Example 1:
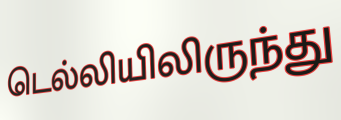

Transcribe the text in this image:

டெல்லியிலிருந்து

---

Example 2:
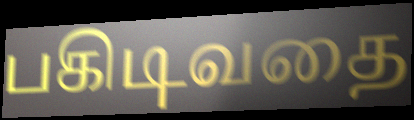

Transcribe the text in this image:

பகிடிவதை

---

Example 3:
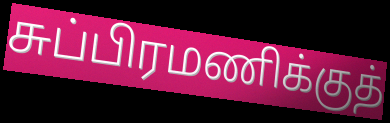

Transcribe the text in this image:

சுப்பிரமணிக்குத்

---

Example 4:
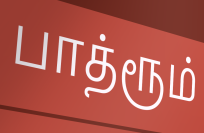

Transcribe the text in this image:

பாத்ரூம்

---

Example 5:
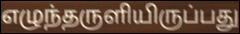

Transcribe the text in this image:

எழுந்தருளியிருப்பது